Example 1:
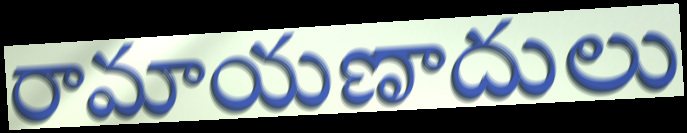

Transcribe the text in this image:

రామాయణాదులు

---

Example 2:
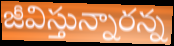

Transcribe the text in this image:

జీవిస్తున్నారన్న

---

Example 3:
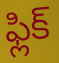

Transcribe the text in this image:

ఫ్లిక్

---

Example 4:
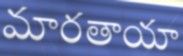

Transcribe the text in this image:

మారతాయా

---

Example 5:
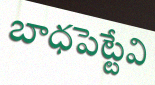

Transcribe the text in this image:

బాధపెట్టేవి